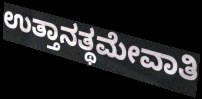
ಉತ್ತಾನತ್ಥಮೇವಾತಿ